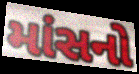
માંસનો